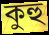
কুহু